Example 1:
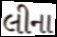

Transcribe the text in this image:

લીના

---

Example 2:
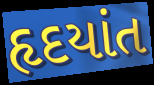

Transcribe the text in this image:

હૃદયાંત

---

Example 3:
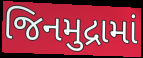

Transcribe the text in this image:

જિનમુદ્રામાં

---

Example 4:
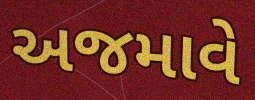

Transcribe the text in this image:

અજમાવે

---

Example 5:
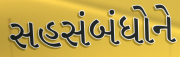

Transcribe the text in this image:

સહસંબંધોને